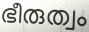
ഭീരുത്വം